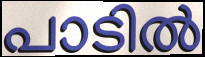
പാടിൽ